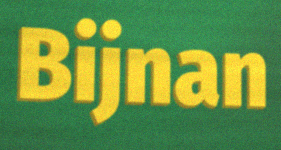
Bijnan